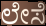
ಲೇಸೆ